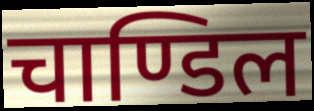
चाण्डिल